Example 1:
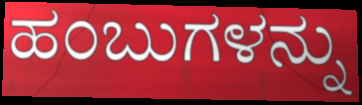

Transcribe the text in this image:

ಹಂಬುಗಳನ್ನು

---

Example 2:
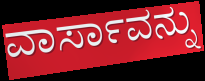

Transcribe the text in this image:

ವಾರ್ಸಾವನ್ನು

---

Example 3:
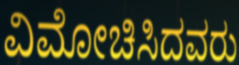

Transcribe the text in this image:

ವಿಮೋಚಿಸಿದವರು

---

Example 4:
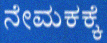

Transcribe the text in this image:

ನೇಮಕಕ್ಕೆ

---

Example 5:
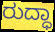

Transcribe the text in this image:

ರುದ್ಧಾ